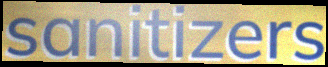
sanitizers